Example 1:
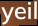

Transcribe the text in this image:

yeil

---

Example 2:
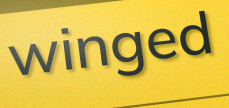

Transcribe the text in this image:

winged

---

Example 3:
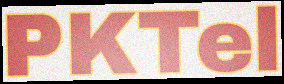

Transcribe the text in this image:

PKTel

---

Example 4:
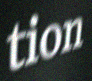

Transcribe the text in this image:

tion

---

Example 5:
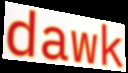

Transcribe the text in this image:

dawk